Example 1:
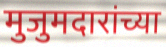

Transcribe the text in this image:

मुजुमदारांच्या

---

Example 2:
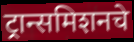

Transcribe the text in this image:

ट्रान्समिशनचे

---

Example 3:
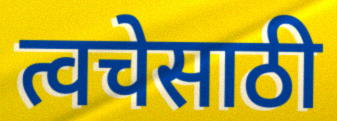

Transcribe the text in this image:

त्वचेसाठी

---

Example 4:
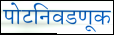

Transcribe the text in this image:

पोटनिवडणूक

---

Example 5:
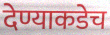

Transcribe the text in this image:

देण्याकडेच